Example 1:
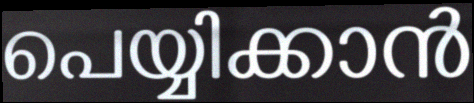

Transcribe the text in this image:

പെയ്യിക്കാൻ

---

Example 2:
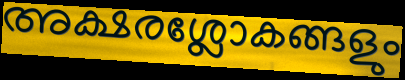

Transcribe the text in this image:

അക്ഷരശ്ലോകങ്ങളും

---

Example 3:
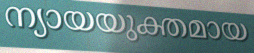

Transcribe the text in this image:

ന്യായയുക്തമായ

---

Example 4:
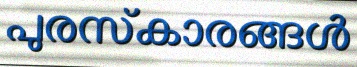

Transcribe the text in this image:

പുരസ്‌കാരങ്ങൾ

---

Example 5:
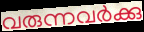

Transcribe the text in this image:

വരുന്നവർക്കു